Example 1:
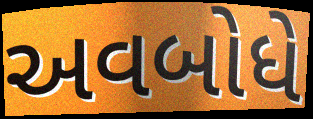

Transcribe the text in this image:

અવબોધે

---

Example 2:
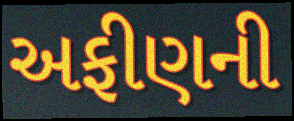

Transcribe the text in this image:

અફીણની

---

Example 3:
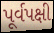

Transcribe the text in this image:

પૂર્વપક્ષી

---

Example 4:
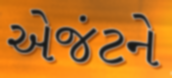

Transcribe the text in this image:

એજંટને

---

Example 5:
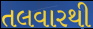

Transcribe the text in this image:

તલવારથી